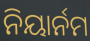
ନିୟାର୍ନମ